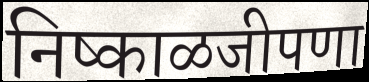
निष्काळजीपणा